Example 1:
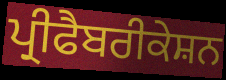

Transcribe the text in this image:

ਪ੍ਰੀਫੈਬਰੀਕੇਸ਼ਨ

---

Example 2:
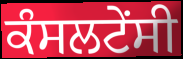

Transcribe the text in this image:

ਕੰਸਲਟੇਂਸੀ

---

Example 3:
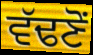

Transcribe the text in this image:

ਵੱਢਣੋਂ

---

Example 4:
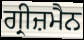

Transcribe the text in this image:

ਗ੍ਰੀਜ਼ਮੈਨ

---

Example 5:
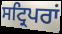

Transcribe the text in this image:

ਸਟ੍ਰਿਪਰਾਂ